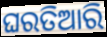
ଘରତିଆରି